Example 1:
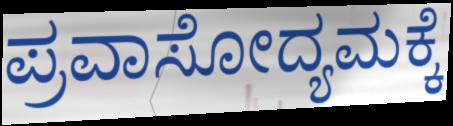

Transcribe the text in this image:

ಪ್ರವಾಸೋದ್ಯಮಕ್ಕೆ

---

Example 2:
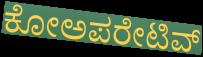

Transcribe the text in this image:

ಕೋಅಪರೇಟಿವ್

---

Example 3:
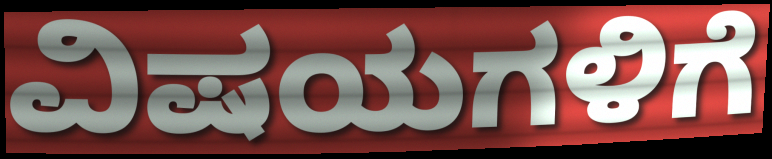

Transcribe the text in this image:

ವಿಷಯಗಳಿಗೆ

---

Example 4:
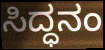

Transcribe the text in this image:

ಸಿದ್ಧನಂ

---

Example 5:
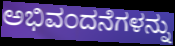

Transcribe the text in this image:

ಅಭಿವಂದನೆಗಳನ್ನು